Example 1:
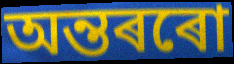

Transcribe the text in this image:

অন্তৰৰো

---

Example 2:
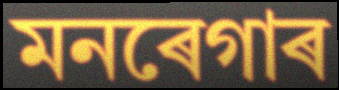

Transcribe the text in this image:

মনৰেগাৰ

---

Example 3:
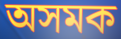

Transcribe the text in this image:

অসমক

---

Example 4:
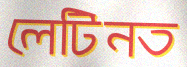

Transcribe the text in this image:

লেটিনত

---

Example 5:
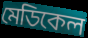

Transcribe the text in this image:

মেডিকেল